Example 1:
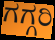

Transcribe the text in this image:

ಗಗ್ಗರಿ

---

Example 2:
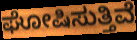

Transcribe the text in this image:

ಘೋಷಿಸುತ್ತಿವೆ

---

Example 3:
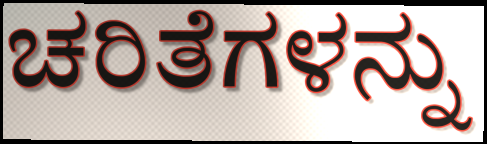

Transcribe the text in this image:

ಚರಿತೆಗಳನ್ನು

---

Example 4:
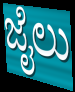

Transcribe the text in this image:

ಜೈಲು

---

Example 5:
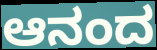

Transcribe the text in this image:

ಆನಂದ